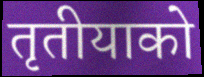
तृतीयाको